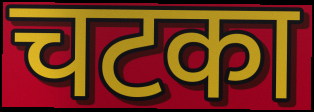
चटका